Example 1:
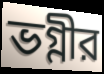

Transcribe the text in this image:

ভগ্নীর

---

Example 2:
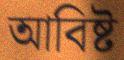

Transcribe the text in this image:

আবিষ্ট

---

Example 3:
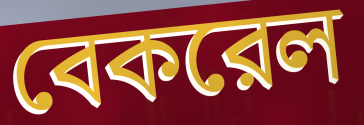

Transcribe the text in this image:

বেকরেল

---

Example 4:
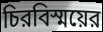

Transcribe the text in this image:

চিরবিস্ময়ের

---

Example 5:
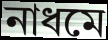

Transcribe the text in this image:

নাধমে